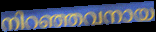
നിറഞ്ഞവനായ